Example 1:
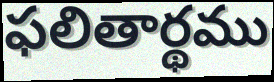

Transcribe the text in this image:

ఫలితార్థము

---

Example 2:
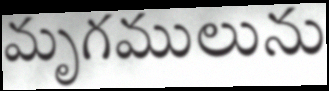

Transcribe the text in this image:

మృగములును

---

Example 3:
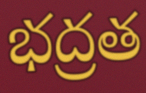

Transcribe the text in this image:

భద్రత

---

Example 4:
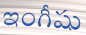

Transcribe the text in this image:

ఇంగీషు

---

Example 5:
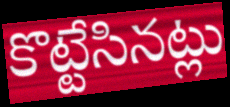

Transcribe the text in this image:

కొట్టేసినట్లు